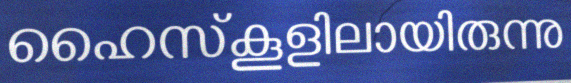
ഹൈസ്‌കൂളിലായിരുന്നു